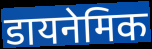
डायनेमिक